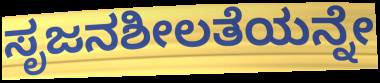
ಸೃಜನಶೀಲತೆಯನ್ನೇ